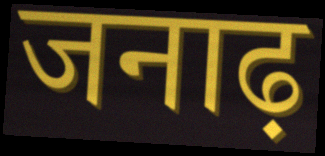
जनाढ़